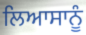
ਲਿਆਸਾਨੂੰ